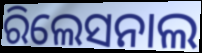
ରିଲେସନାଲ